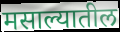
मसाल्यातील